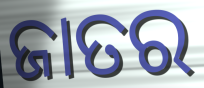
ଜାତର